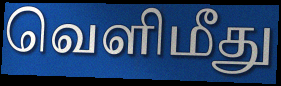
வெளிமீது